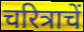
चरित्राचें